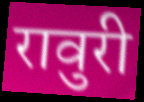
रावुरी